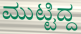
ಮುಟ್ಟಿದ್ದ